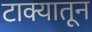
टाक्यातून